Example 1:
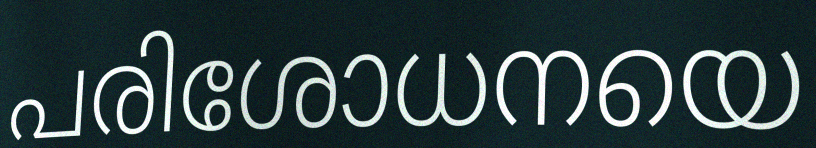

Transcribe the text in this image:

പരിശോധനയെ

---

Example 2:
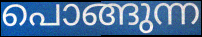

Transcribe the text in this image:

പൊങ്ങുന്ന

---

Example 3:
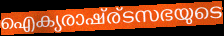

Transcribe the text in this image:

ഐക്യരാഷ്ര്ടസഭയുടെ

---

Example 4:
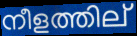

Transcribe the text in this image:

നീളത്തില്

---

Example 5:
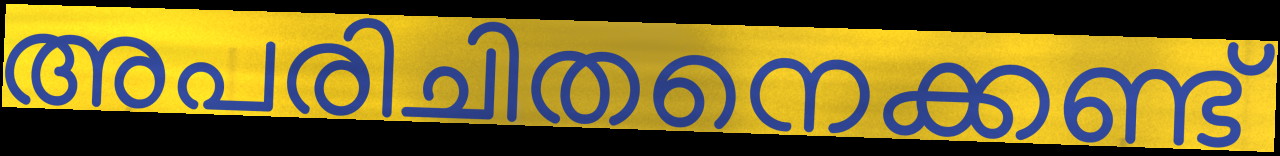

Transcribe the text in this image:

അപരിചിതനെക്കണ്ട്